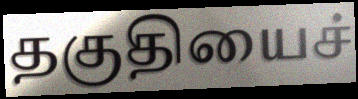
தகுதியைச்